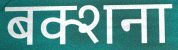
बक्शना